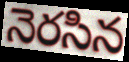
నెరసిన